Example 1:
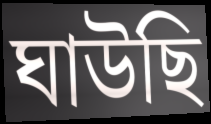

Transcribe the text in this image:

ঘাউছি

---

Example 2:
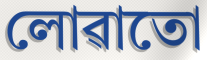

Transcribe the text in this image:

লোৱাতো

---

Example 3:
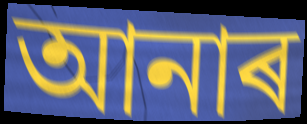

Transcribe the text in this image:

আনাৰ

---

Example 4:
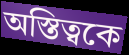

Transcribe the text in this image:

অস্তিত্বকে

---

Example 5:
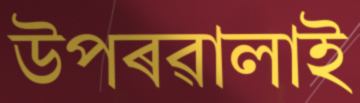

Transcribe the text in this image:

উপৰৱালাই